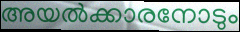
അയൽക്കാരനോടും